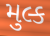
મુલ્ક